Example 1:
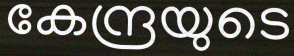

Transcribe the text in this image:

കേന്ദ്രയുടെ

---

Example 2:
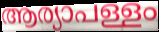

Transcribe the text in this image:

ആര്യാപള്ളം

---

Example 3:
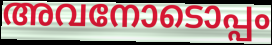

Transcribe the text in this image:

അവനോടൊപ്പം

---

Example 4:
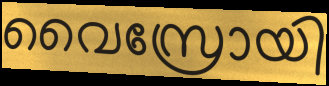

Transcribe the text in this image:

വൈസ്രോയി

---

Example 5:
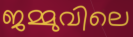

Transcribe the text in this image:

ജമ്മുവിലെ